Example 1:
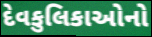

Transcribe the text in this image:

દેવકુલિકાઓનો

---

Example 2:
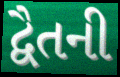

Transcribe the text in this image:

દ્વૈતની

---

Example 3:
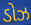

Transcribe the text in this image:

ડોઝ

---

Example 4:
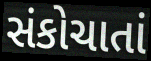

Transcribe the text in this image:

સંકોચાતાં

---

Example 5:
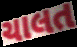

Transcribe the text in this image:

ચાલત